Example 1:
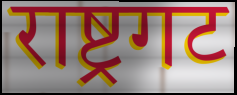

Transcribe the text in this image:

राष्ट्रगट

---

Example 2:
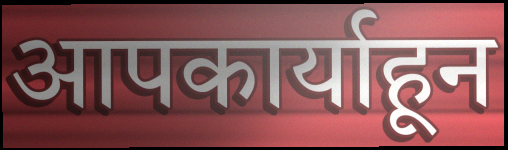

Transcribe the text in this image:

आपकार्याहून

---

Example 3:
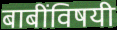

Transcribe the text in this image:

बाबींविषयी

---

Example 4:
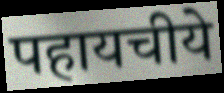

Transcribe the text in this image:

पहायचीये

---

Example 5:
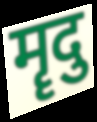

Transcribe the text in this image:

मॄदु